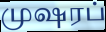
முஷரப்